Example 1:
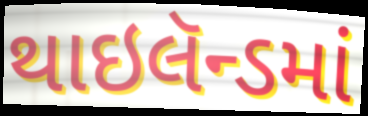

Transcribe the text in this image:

થાઇલૅન્ડમાં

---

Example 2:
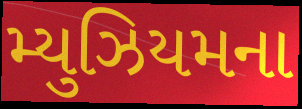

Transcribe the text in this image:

મ્યુઝિયમના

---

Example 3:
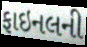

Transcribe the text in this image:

ફાઇનલની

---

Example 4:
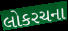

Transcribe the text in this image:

લોકરચના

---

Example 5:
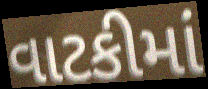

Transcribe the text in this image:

વાટકીમાં